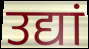
उद्यां